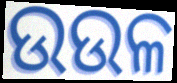
ଉଉଳ